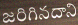
జరిగినదాని